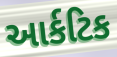
આર્કટિક